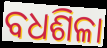
ବଧଶିଳା